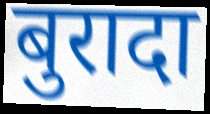
बुरादा